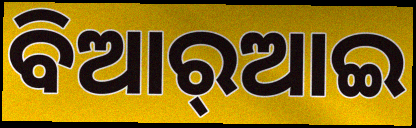
ବିଆର୍‌ଆଇ